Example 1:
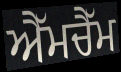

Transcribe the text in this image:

ਐੱਮਚੈੱਮ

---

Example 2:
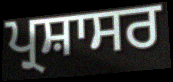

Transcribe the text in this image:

ਪ੍ਰਸ਼ਾਸਰ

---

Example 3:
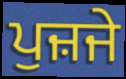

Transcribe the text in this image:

ਪੁਜ਼ਜੇ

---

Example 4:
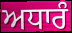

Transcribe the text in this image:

ਅਧਾਰੰ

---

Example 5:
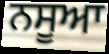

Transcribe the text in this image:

ਨਸੂਆ